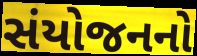
સંયોજનનો